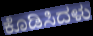
ಕೊಡಿಸಿದಳು